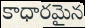
కాధారమైన